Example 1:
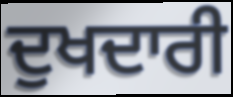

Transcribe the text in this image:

ਦੁਖਦਾਰੀ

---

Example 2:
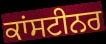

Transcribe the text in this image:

ਕਾਂਸਟੀਨਰ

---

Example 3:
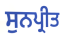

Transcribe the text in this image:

ਸੁਨਪ੍ਰੀਤ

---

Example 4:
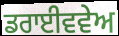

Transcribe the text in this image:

ਡਰਾਈਵਵੇਅ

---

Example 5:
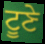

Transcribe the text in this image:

ਟੂਣੇ